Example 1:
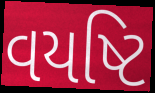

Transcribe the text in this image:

વયષ્ટિ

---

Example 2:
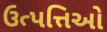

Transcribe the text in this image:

ઉત્પત્તિઓ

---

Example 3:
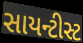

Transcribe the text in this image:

સાયન્ટીસ્ટ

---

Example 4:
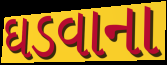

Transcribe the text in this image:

ઘડવાના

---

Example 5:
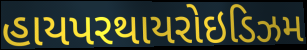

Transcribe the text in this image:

હાયપરથાયરોઇડિઝમ